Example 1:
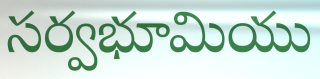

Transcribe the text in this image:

సర్వభూమియు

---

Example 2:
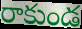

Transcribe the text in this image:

రాకుండ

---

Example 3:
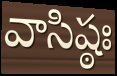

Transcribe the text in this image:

వాసిష్ఠః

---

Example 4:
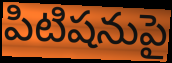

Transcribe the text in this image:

పిటిషనుపై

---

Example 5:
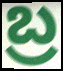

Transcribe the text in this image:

బ్ర